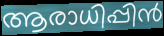
ആരാധിപ്പിൻ